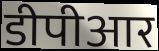
डीपीआर